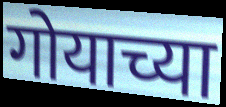
गोयाच्या